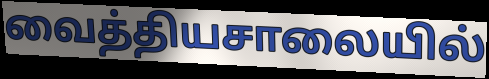
வைத்தியசாலையில்